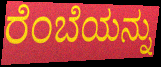
ರೆಂಬೆಯನ್ನು